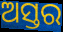
ଅସ୍ତର